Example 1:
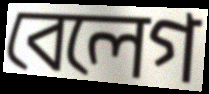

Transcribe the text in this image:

বেলেগ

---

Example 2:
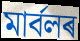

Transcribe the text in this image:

মাৰ্বলৰ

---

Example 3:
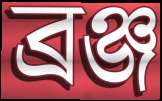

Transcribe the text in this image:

ব্ৰঞ্জ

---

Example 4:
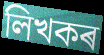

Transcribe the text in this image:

লিখকৰ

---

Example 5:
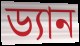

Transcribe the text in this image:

ড্যান